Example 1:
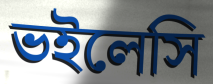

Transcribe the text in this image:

ভইলেসি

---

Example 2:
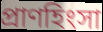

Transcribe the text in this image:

প্রাণহিংসা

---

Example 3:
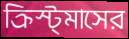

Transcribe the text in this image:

ক্রিস্ট্‌মাসের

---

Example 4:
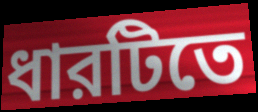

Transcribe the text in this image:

ধারটিতে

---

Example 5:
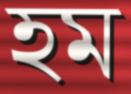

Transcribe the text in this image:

হম